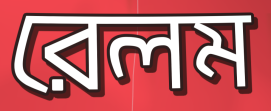
রেলম